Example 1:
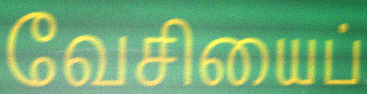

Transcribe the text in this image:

வேசியைப்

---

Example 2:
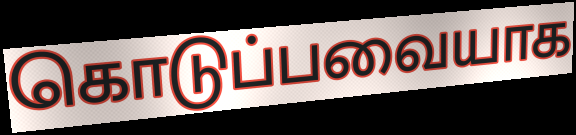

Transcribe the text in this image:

கொடுப்பவையாக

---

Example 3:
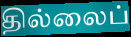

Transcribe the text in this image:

தில்லைப்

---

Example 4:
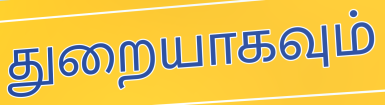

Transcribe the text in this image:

துறையாகவும்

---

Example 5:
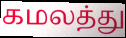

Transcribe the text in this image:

கமலத்து